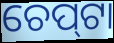
ଚେପ୍‍ଟା